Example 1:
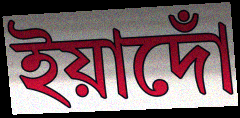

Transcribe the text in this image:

ইয়াদোঁ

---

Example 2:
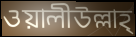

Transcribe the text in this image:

ওয়ালীউল্লাহ্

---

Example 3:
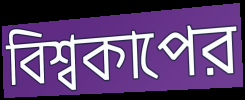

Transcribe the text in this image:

বিশ্বকাপের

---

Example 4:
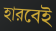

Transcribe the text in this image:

হারবেই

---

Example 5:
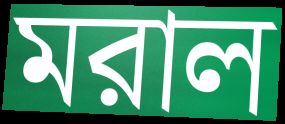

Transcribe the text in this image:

মরাল